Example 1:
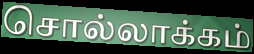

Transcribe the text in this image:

சொல்லாக்கம்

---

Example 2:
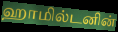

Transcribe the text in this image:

ஹாமில்டனின்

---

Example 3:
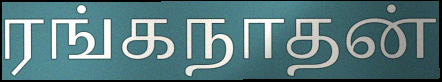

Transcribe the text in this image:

ரங்கநாதன்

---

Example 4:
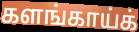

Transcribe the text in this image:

களங்காய்க்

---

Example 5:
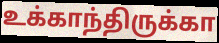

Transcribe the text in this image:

உக்காந்திருக்கா